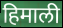
हिमाली